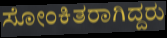
ಸೋಂಕಿತರಾಗಿದ್ದರು